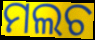
ମଲଚ